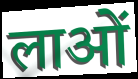
लाओं